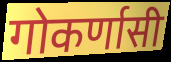
गोकर्णासी